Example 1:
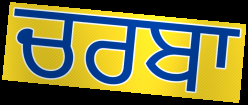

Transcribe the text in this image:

ਚਰਬਾ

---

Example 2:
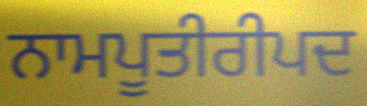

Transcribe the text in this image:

ਨਾਮਪੂਤੀਰੀਪਦ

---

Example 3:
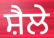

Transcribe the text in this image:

ਸ਼ੈਲੇ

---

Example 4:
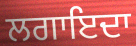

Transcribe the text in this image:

ਲਗਾਇਦਾ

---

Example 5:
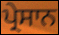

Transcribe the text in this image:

ਪ੍ਰੇਸਾਨ